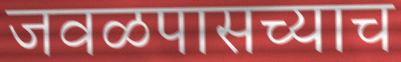
जवळपासच्याच